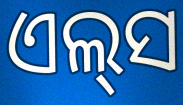
ଏଲ୍‌ସ